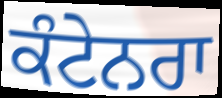
ਕੰਟੇਨਰਾ